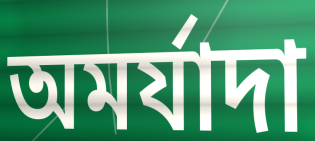
অমর্যাদা